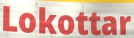
Lokottar